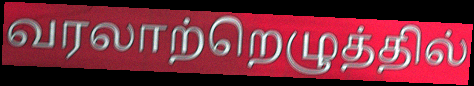
வரலாற்றெழுத்தில்